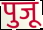
पुजू